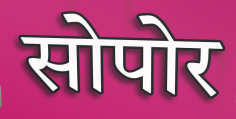
सोपोर